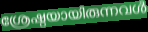
ശ്രേഷ്ഠയായിരുന്നവൾ